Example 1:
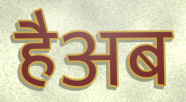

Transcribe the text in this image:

हैअब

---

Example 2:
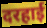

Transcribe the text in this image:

दरहाई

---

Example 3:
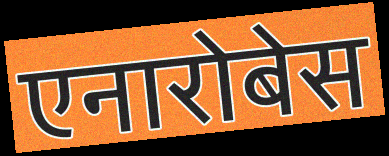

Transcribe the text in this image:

एनारोबेस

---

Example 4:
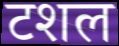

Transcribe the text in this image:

टशल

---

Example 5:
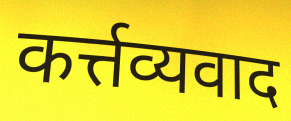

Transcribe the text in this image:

कर्त्तव्यवाद